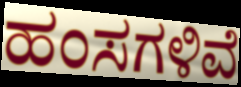
ಹಂಸಗಳಿವೆ